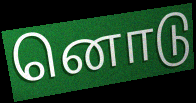
னொடு